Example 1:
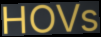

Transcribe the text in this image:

HOVs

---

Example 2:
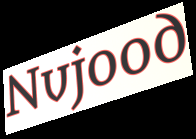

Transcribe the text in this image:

Nujood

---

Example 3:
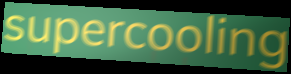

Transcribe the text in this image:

supercooling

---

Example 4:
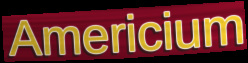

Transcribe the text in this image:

Americium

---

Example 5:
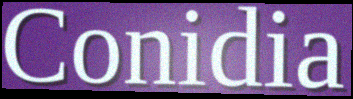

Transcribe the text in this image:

Conidia